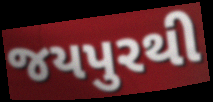
જયપુરથી